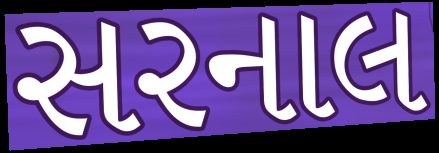
સરનાલ